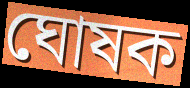
ঘোষক